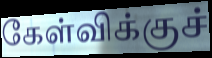
கேள்விக்குச்